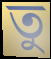
তু